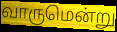
வாருமென்று